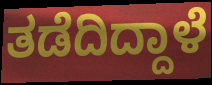
ತಡೆದಿದ್ದಾಳೆ